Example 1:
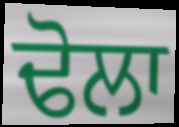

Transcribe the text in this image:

ਢੋਲਾ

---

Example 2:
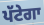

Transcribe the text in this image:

ਪੱਟੇਗਾ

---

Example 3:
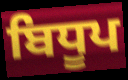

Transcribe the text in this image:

ਬਿਧੂਪ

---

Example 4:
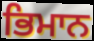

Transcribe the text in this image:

ਭਿਮਾਨ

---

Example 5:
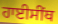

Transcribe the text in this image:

ਹਾਈਸੀੰਥ